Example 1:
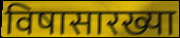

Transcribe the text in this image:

विषासारख्या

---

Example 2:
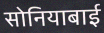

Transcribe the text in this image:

सोनियाबाई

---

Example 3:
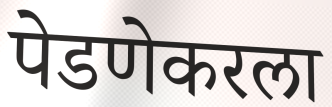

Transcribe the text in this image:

पेडणेकरला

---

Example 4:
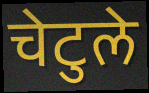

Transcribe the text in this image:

चेटुले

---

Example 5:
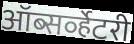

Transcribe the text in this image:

ऑब्सर्व्हेटरी